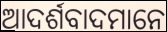
ଆଦର୍ଶବାଦମାନେ